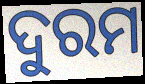
ଦୁରମ